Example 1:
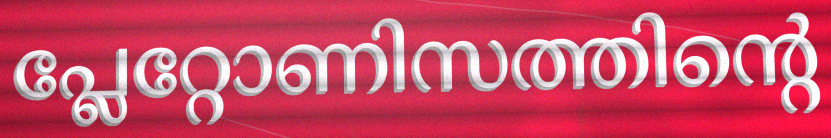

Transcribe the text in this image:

പ്ലേറ്റോണിസത്തിന്റെ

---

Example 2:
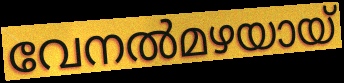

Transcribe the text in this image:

വേനൽമഴയായ്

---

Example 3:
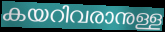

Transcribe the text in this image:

കയറിവരാനുള്ള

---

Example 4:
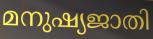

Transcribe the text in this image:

മനുഷ്യജാതി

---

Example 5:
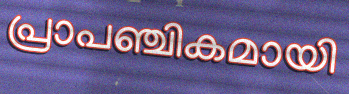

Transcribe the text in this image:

പ്രാപഞ്ചികമായി